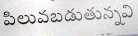
పిలువబడుతున్నవి